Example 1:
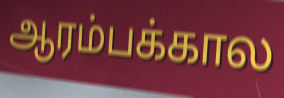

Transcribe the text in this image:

ஆரம்பக்கால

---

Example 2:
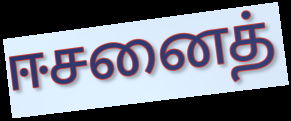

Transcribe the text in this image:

ஈசனைத்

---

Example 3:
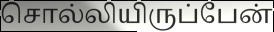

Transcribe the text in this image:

சொல்லியிருப்பேன்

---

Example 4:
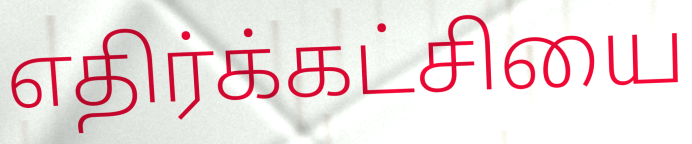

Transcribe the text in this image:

எதிர்க்கட்சியை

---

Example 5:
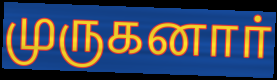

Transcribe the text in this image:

முருகனார்